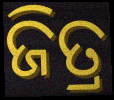
ଜିତ୍ର